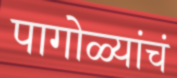
पागोळ्यांचं